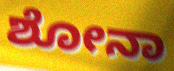
ಶೋನಾ